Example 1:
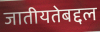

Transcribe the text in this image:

जातीयतेबद्दल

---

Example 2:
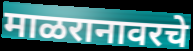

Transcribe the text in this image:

माळरानावरचे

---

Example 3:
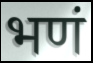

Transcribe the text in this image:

भणं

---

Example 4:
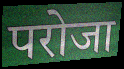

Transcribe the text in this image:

परोजा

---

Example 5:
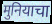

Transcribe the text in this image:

मुनियाचा